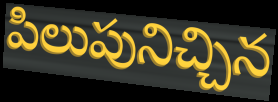
పిలుపునిచ్చిన